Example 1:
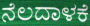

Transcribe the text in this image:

ನೆಲದಾಳಕೆ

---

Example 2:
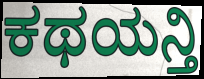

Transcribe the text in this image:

ಕಥಯನ್ತಿ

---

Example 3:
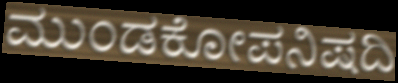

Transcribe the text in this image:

ಮುಂಡಕೋಪನಿಷದಿ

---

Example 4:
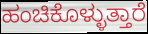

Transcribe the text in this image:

ಹಂಚಿಕೊಳ್ಳುತ್ತಾರೆ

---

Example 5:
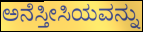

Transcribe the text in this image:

ಅನೆಸ್ತೀಸಿಯವನ್ನು